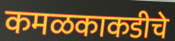
कमळकाकडीचे